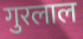
गुरलाल